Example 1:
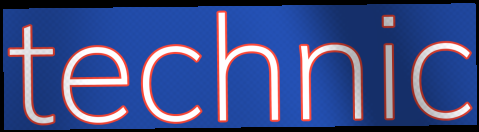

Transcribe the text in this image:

technic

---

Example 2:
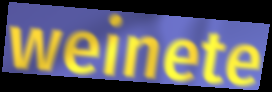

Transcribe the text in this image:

weinete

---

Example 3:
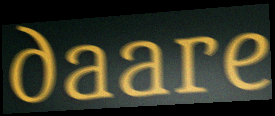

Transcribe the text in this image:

daare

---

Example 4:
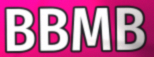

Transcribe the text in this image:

BBMB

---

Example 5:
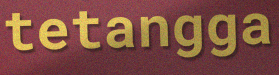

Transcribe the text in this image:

tetangga